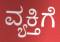
ವ್ಯಕ್ತಿಗೆ